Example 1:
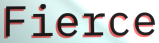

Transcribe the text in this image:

Fierce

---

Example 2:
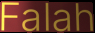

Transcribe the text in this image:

Falah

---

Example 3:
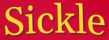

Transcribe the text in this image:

Sickle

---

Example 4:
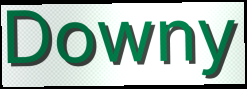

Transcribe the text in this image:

Downy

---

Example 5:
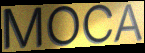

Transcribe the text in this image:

MOCA